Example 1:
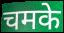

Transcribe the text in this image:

चमके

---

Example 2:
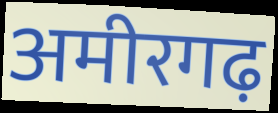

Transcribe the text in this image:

अमीरगढ़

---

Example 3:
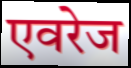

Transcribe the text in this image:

एवरेज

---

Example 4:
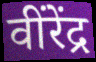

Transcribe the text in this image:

वींरेंद्र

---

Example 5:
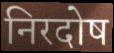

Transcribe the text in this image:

निरदोष